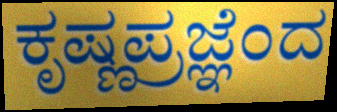
ಕೃಷ್ಣಪ್ರಜ್ಞೆಂದ